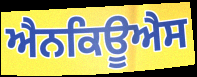
ਐਨਕਿਊਐਸ